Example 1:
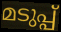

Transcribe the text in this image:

മടുപ്പ്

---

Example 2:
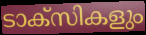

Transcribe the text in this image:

ടാക്സികളും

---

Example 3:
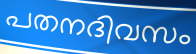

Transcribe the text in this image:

പതനദിവസം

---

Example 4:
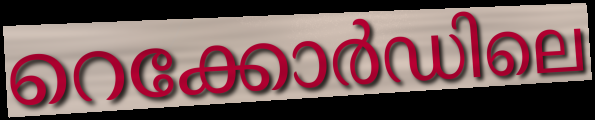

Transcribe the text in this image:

റെക്കോർഡിലെ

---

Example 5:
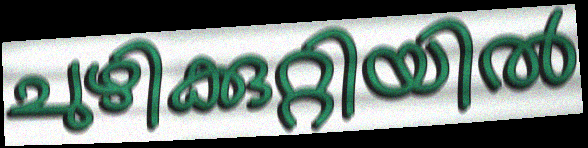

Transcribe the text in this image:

ചുഴിക്കുറ്റിയിൽ